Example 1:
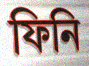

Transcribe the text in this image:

ফিনি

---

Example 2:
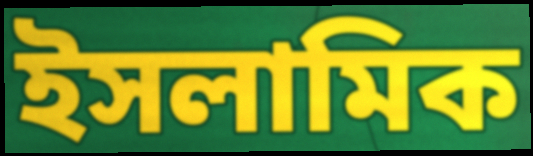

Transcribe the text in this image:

ইসলামিক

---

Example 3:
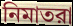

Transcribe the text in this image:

নিমাতরা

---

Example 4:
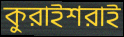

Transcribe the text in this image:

কুরাইশরাই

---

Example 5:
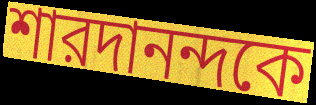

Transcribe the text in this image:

শারদানন্দকে